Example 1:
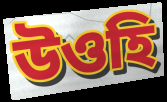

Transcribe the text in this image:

উওহি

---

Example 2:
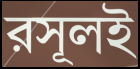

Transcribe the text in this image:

রসূলই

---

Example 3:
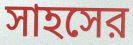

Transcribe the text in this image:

সাহসের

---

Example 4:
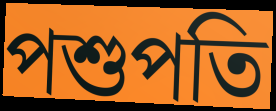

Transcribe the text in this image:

পশুপতি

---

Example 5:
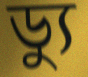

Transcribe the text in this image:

ড্যু